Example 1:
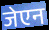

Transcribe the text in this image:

जेएन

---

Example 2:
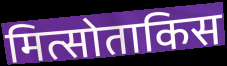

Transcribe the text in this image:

मित्सोताकिस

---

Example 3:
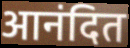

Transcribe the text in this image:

आनंदित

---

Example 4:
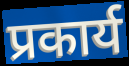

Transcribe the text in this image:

प्रकार्य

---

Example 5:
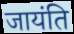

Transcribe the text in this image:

जायंति